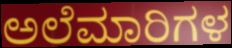
ಅಲೆಮಾರಿಗಳ